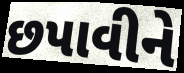
છપાવીને